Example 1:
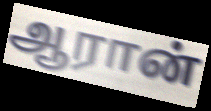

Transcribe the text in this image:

ஆரான்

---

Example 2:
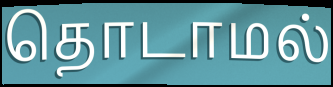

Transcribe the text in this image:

தொடாமல்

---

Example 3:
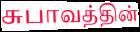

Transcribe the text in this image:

சுபாவத்தின்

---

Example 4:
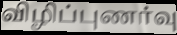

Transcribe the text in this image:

விழிப்புணர்வு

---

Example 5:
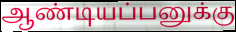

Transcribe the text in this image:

ஆண்டியப்பனுக்கு